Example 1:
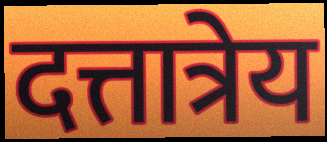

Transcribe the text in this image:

दत्तात्रेय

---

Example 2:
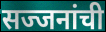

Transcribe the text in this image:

सज्जनांची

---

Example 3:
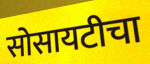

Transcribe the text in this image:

सोसायटीचा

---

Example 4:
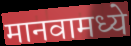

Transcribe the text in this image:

मानवामध्ये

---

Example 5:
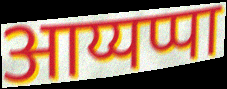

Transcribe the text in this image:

आय्यप्पा